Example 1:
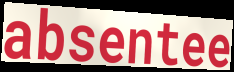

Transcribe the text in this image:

absentee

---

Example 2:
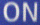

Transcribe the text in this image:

ON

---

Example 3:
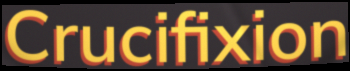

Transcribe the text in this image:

Crucifixion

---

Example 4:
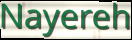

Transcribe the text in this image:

Nayereh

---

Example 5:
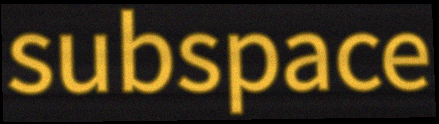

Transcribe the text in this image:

subspace